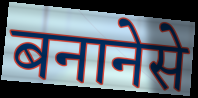
बनानेसे